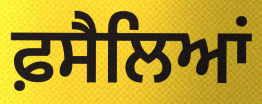
ਫ਼ਸੈਲਿਆਂ